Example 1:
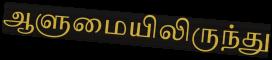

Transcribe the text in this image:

ஆளுமையிலிருந்து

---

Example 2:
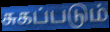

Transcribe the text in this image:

சுகப்படும்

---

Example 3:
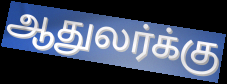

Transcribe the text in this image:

ஆதுலர்க்கு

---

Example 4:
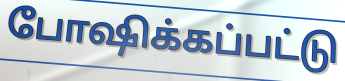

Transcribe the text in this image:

போஷிக்கப்பட்டு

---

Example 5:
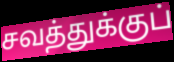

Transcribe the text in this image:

சவத்துக்குப்